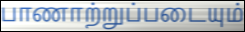
பாணாற்றுப்படையும்